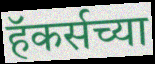
हॅकर्सच्या